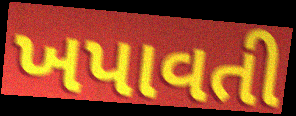
ખપાવતી